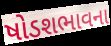
ષોડશભાવના